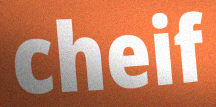
cheif